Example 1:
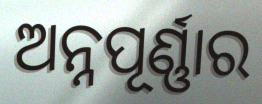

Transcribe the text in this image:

ଅନ୍ନପୂର୍ଣ୍ଣାର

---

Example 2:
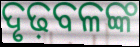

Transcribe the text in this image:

ଦୃଢ଼ବଳଙ୍କ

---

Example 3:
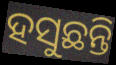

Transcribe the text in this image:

ହସୁଛନ୍ତି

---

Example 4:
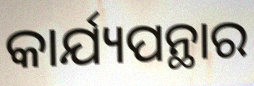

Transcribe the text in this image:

କାର୍ଯ୍ୟପନ୍ଥାର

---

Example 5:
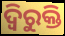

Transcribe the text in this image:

ଦ୍ୱିରୁକ୍ତି